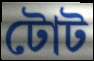
টোট